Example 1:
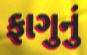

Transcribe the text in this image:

ફાગુનું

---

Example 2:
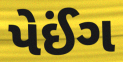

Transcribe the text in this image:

પેઈંગ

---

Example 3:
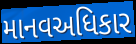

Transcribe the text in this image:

માનવઅધિકાર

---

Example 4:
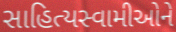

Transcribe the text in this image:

સાહિત્યસ્વામીઓને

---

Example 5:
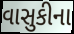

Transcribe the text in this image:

વાસુકીના